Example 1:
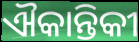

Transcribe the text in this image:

ଐକାନ୍ତିକୀ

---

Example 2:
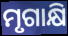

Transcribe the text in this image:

ମୃଗାକ୍ଷି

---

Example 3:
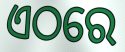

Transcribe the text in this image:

ଏଠରେ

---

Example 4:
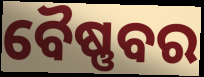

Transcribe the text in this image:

ବୈଷ୍ଣବର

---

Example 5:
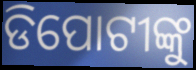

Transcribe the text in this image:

ଡିପୋଟୀଙ୍କୁ